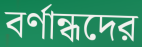
বর্ণান্ধদের